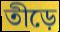
তীড়ে